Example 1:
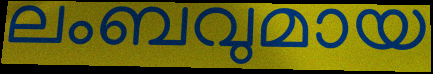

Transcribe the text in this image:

ലംബവുമായ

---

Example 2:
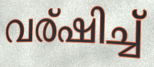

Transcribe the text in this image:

വര്ഷിച്ച്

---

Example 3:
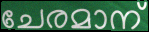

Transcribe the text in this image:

ചേരമാന്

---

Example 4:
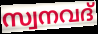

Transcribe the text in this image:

സ്വനവദ്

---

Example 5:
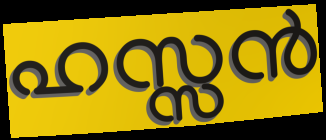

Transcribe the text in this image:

ഹസ്സൻ